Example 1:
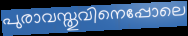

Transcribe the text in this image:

പുരാവസ്തുവിനെപ്പോലെ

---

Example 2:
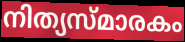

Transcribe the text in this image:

നിത്യസ്മാരകം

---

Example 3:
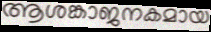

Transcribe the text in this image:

ആശങ്കാജനകമായ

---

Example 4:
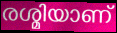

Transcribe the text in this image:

രശ്മിയാണ്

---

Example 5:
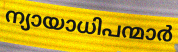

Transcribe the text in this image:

ന്യായാധിപന്മാർ